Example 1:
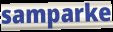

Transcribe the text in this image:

samparke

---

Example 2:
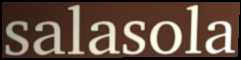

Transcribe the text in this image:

salasola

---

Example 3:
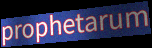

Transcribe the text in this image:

prophetarum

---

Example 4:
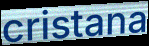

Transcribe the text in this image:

cristana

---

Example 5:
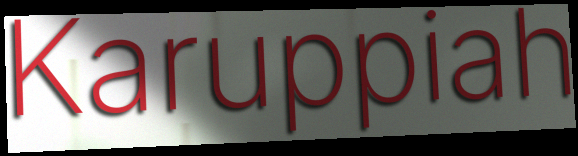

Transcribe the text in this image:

Karuppiah